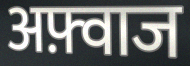
अफ़्वाज